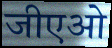
जीएओ